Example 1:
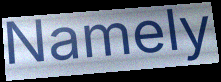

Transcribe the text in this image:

Namely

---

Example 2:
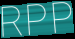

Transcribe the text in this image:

RPP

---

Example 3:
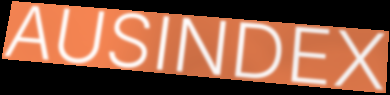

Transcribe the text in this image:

AUSINDEX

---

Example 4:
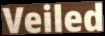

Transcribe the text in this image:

Veiled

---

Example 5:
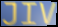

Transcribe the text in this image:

JIV